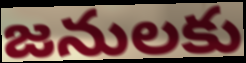
జనులకు